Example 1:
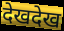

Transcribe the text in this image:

देखदेख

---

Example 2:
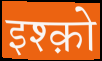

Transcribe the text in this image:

इश्क़ो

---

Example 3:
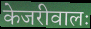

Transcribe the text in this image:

केजरीवालः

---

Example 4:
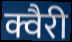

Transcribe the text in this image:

क्वैरी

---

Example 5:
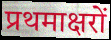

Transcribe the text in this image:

प्रथमाक्षरों